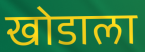
खोडाला